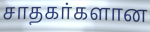
சாதகர்களான